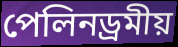
পেলিনড্ৰমীয়